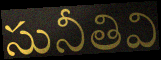
సునీతివి